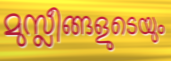
മുസ്ലീങ്ങളുടെയും